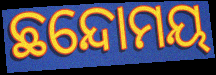
ଛନ୍ଦୋମୟ